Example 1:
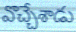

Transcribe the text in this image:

వొచ్చేశాడు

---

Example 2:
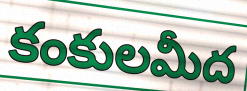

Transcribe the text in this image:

కంకులమీద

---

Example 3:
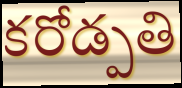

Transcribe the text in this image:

కరోడ్పతి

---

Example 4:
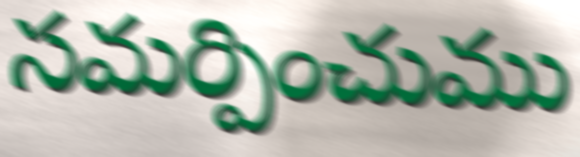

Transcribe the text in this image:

సమర్పించుము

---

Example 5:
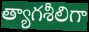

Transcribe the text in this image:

త్యాగశీలిగా